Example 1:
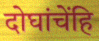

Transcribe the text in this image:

दोघांचेंहि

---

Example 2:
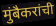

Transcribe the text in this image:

मुंबैकरांची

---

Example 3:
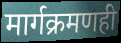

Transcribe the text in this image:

मार्गक्रमणही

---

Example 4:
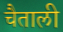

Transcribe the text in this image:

चैताली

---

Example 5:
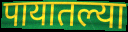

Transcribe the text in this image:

पायातल्या